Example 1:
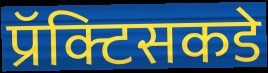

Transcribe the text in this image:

प्रॅक्टिसकडे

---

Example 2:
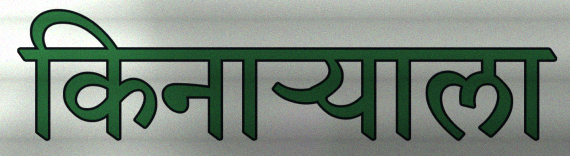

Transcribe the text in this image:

किनाऱ्याला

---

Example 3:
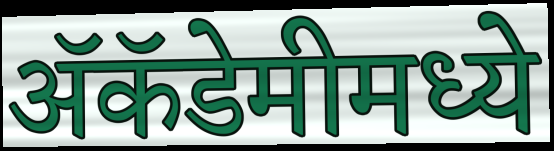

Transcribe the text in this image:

ॲकॅडेमीमध्ये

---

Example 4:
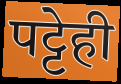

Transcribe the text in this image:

पट्टेही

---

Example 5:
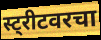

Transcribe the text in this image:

स्ट्रीटवरचा